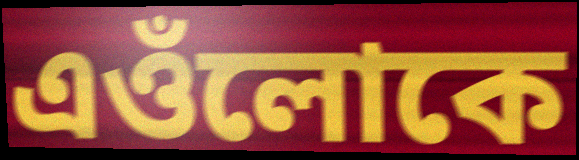
এওঁলোকে